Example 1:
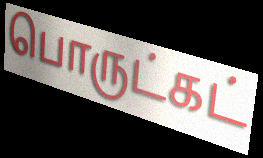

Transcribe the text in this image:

பொருட்கட்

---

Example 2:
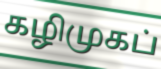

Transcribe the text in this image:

கழிமுகப்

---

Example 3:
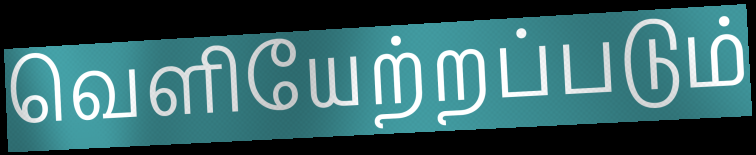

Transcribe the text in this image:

வெளியேற்றப்படும்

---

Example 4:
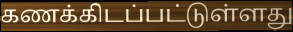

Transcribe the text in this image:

கணக்கிடப்பட்டுள்ளது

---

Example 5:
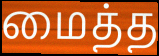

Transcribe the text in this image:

மைத்த